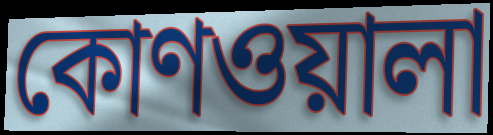
কোণওয়ালা